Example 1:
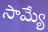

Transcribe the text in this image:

సామ్యే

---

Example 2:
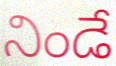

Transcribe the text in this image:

నిండే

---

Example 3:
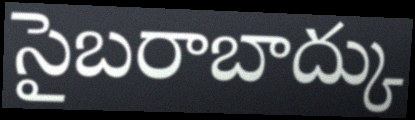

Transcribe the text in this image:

సైబరాబాద్కు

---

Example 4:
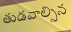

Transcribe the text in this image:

తుడవాల్సిన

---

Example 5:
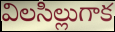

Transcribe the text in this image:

విలసిల్లుగాక